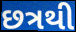
છત્રથી